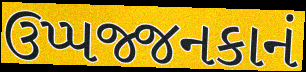
ઉપ્પજ્જનકાનં